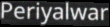
Periyalwar